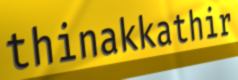
thinakkathir